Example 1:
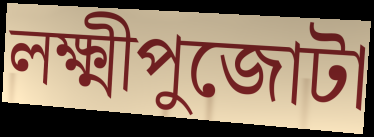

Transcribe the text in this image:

লক্ষ্মীপুজোটা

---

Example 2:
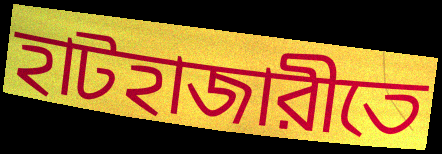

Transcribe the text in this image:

হাটহাজারীতে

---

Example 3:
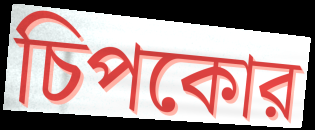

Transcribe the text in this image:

চিপকোর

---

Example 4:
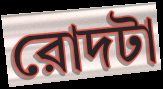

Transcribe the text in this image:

রোদটা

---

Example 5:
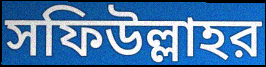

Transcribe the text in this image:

সফিউল্লাহর